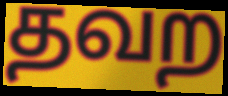
தவற